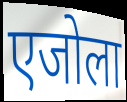
एजोला